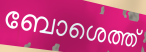
ബോശെത്ത്